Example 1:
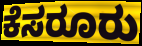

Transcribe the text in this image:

ಕೆಸರೂರು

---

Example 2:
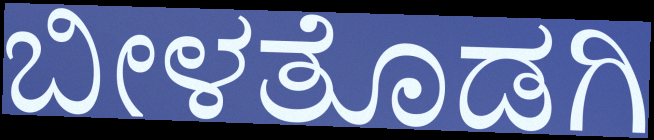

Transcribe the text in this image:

ಬೀಳತೊಡಗಿ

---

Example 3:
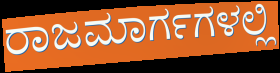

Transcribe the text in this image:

ರಾಜಮಾರ್ಗಗಳಲ್ಲಿ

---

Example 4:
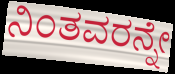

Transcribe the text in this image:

ನಿಂತವರನ್ನೇ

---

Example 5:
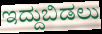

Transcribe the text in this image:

ಇದ್ದುಬಿಡಲು